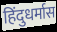
हिंदुधर्मास